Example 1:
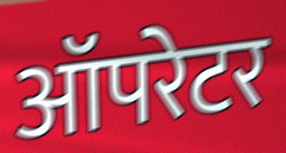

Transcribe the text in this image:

ऑपरेटर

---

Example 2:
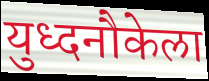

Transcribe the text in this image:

युध्दनौकेला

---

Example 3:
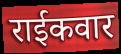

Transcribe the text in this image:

राईकवार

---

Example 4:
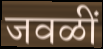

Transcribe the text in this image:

जवळीं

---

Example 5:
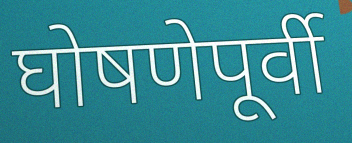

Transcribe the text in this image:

घोषणेपूर्वी